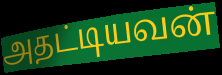
அதட்டியவன்